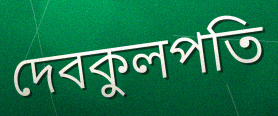
দেবকুলপতি